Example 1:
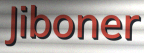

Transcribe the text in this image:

Jiboner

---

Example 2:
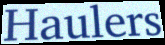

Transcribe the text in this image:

Haulers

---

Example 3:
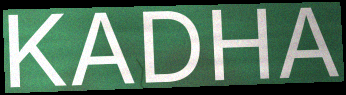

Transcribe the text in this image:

KADHA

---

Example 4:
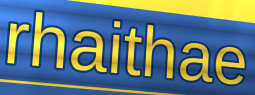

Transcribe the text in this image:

rhaithae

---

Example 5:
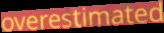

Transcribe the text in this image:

overestimated